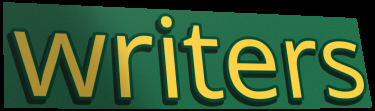
writers